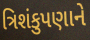
ત્રિશંકુપણાને